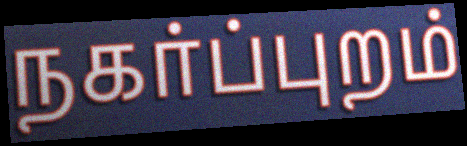
நகர்ப்புறம்